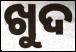
ଖୁଦ